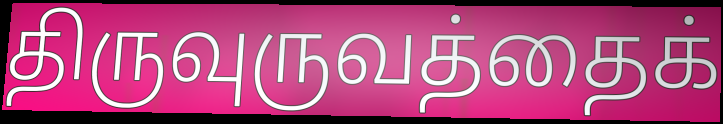
திருவுருவத்தைக்